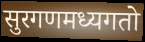
सुरगणमध्यगतो